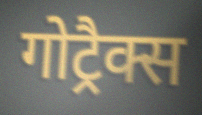
गोट्रैक्स